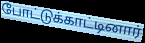
போட்டுக்காட்டினார்